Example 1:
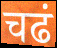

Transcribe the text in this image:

चढं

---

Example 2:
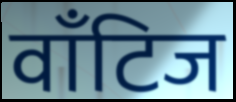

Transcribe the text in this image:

वाँटिज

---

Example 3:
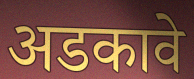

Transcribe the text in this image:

अडकावे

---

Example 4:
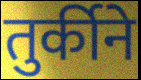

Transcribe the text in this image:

तुर्कीने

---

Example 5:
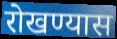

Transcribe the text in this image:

रोखण्यास